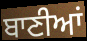
ਬਾਣੀਆਂ